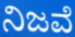
ನಿಜವೆ